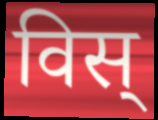
विस्